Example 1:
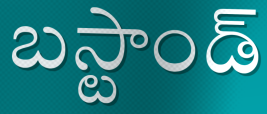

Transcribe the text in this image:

బస్టాండ్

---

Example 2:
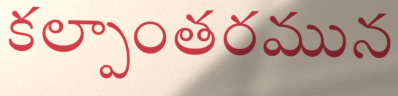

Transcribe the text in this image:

కల్పాంతరమున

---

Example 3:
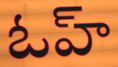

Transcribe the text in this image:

ఓహ్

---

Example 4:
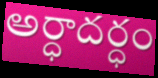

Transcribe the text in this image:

అర్ధాదర్ధం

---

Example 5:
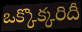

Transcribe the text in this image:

ఒక్కొక్కరిదీ